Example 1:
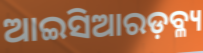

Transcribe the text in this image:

ଆଇସିଆରଡ଼ବ୍ଳ୍ୟ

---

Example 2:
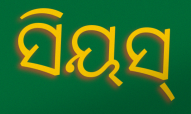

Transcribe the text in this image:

ସିୟସ୍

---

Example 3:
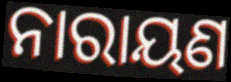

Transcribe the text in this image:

ନାରାୟଣ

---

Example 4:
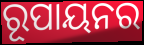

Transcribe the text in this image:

ରୂପାୟନର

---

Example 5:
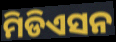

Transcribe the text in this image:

ମିଡିଏସନ